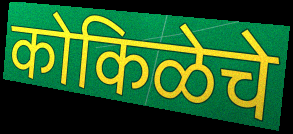
कोकिळेचे